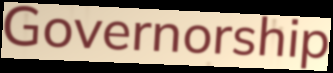
Governorship